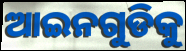
ଆଇନଗୁଡିକୁ